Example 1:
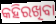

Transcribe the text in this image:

କହିରଖିବା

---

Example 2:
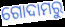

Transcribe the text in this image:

ଗୋଦାମରୁ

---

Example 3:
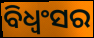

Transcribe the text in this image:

ବିଧ୍ୱଂସର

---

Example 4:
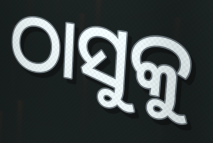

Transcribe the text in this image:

ଠାସୁକୁ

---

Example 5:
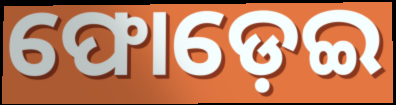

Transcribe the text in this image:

ଫୋଡ଼େଇ